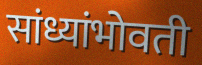
सांध्यांभोवती